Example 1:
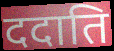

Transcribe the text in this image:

ददाति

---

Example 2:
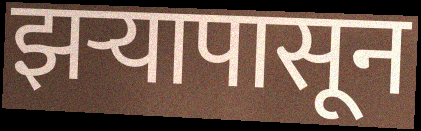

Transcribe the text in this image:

झऱ्यापासून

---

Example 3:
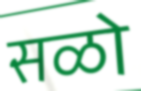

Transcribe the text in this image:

सळो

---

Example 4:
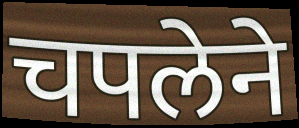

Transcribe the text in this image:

चपलेने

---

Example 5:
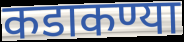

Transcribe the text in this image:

कडाकण्या